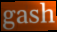
gash